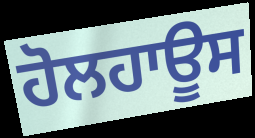
ਹੋਲਹਾਊਸ